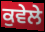
ਕੁਵੇਲੇ